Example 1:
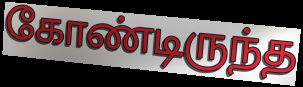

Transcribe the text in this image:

கோண்டிருந்த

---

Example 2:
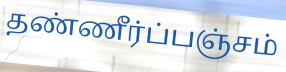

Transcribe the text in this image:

தண்ணீர்ப்பஞ்சம்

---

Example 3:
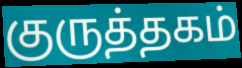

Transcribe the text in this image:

குருத்தகம்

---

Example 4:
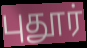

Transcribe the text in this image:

புதூர்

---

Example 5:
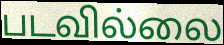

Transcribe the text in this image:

படவில்லை